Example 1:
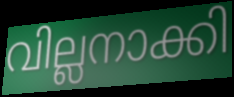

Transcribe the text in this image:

വില്ലനാക്കി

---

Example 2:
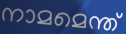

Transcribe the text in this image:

നാമമെന്ത്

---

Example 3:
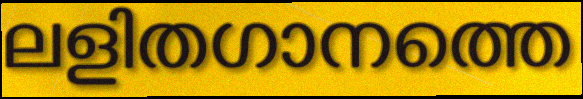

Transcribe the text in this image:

ലളിതഗാനത്തെ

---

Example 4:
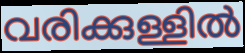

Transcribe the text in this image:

വരിക്കുള്ളിൽ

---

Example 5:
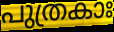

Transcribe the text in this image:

പുത്രകാഃ